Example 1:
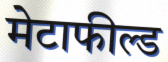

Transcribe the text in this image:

मेटाफील्ड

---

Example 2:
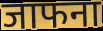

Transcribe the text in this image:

जाफना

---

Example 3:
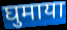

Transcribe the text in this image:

घुमाया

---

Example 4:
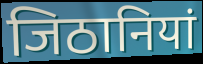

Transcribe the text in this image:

जिठानियां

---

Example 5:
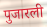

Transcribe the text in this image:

पुजारली